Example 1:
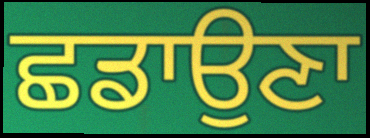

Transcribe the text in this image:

ਛਡਾਉਣਾ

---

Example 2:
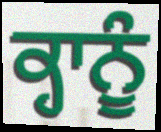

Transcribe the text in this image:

ਕ੍ਹਾਨੂੰ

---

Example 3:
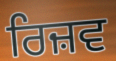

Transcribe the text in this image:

ਰਿਜ਼ਵ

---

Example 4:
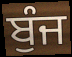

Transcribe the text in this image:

ਬੁੰਜ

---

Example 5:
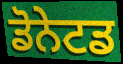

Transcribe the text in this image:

ਡੋਨੇਟਡ